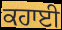
ਕਹਾਈ